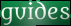
guides